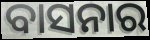
ବାସନାର